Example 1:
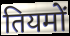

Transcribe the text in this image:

तियमों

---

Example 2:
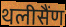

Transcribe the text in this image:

थलीसैंण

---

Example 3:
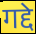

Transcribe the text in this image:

गद्दे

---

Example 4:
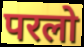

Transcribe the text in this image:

परलो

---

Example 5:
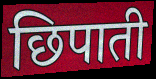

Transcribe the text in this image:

छिपाती